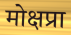
मोक्षप्रा